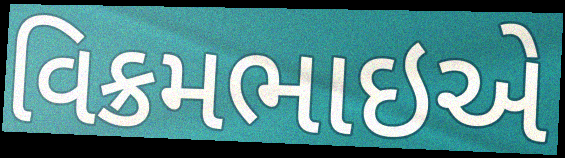
વિક્રમભાઇએ